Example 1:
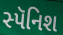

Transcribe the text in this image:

સ્પૅનિશ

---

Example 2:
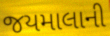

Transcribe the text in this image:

જયમાલાની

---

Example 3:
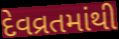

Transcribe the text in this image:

દેવવ્રતમાંથી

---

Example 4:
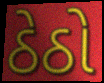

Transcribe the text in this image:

ઠેઠો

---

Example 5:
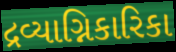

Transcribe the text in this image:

દ્રવ્યાગ્નિકારિકા